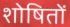
शोषितों